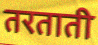
तरताती